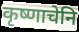
कृष्णाचेनि